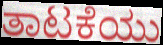
ತಾಟಕೆಯು